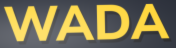
WADA